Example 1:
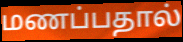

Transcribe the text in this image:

மணப்பதால்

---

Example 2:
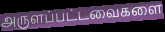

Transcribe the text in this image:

அருளப்பட்டவைகளை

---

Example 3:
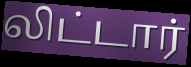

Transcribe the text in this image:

லிட்டார்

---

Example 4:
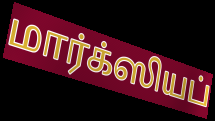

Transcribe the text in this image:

மார்க்ஸியப்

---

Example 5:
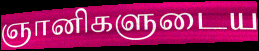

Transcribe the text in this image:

ஞானிகளுடைய